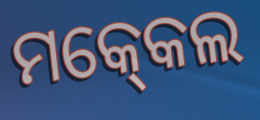
ମକ୍‍କେଲ